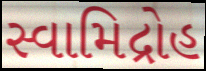
સ્વામિદ્રોહ